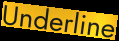
Underline